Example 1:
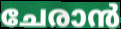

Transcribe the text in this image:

ചേരാൻ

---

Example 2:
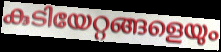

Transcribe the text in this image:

കുടിയേറ്റങ്ങളെയും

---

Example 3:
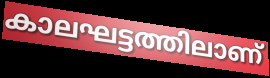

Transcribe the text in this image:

കാലഘട്ടത്തിലാണ്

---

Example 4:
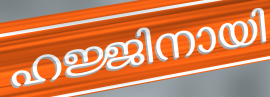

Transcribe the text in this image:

ഹജ്ജിനായി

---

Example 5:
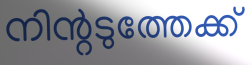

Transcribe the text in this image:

നിന്റടുത്തേക്ക്